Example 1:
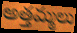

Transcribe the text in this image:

అత్తమ్మలు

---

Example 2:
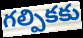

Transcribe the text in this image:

గల్పికకు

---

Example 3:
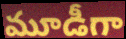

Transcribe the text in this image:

మూడీగా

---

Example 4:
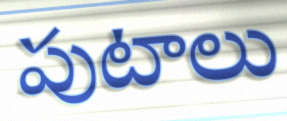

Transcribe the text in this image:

పుటాలు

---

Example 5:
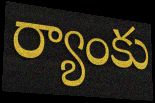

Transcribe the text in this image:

ర్యాంకు